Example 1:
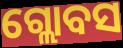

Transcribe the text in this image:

ଗ୍ଲୋବସ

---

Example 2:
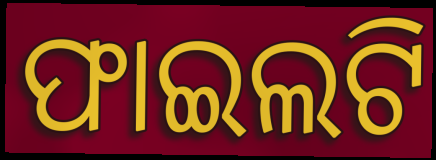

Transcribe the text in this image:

ଫାଇଲଟି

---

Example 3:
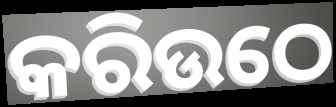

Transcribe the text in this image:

କରିଉଠେ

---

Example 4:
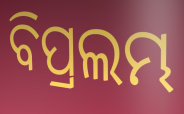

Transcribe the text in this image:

ବିପ୍ରଲମ୍ଭ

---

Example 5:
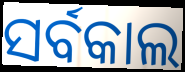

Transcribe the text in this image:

ସର୍ବକାଲ